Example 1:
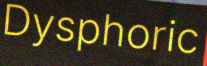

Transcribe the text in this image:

Dysphoric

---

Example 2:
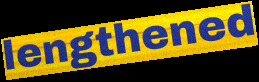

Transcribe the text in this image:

lengthened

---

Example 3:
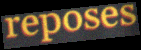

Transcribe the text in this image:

reposes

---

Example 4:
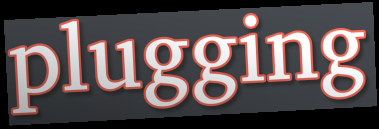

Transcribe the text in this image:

plugging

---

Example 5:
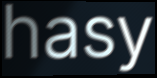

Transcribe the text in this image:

hasy